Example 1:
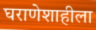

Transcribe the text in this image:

घराणेशाहीला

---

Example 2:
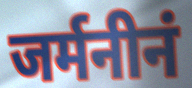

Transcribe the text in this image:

जर्मनीनं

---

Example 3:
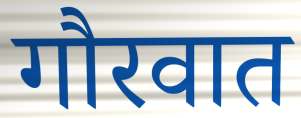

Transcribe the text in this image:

गौरवात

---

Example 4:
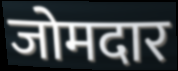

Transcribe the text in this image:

जोमदार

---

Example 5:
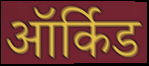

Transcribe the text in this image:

ऑर्किड